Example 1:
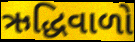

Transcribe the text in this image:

ઋદ્ધિવાળો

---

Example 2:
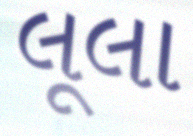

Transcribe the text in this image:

લૂલા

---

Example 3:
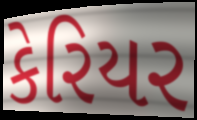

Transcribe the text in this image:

કેરિયર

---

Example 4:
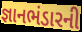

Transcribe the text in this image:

જ્ઞાનભંડારની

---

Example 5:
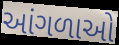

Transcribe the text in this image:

આંગળાઓ